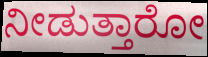
ನೀಡುತ್ತಾರೋ